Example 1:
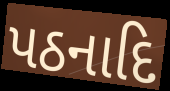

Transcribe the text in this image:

પઠનાદિ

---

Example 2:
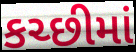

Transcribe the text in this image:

કચ્છીમાં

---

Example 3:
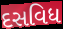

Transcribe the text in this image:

દસવિધ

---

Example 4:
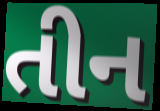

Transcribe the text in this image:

તીન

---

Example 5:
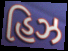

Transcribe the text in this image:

હિઝ